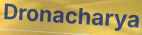
Dronacharya